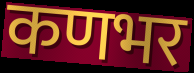
कणभर